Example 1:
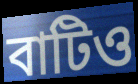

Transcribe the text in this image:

বাটিও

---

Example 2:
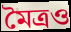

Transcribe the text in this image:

মৈত্রও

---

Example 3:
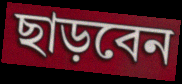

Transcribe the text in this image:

ছাড়বেন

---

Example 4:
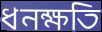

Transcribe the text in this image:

ধনক্ষতি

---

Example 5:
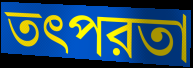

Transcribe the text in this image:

তৎপরতা